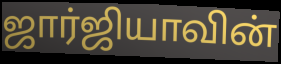
ஜார்ஜியாவின்